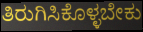
ತಿರುಗಿಸಿಕೊಳ್ಳಬೇಕು